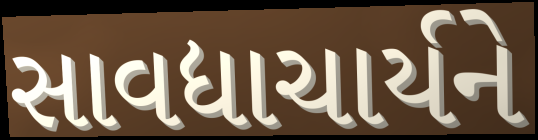
સાવદ્યાચાર્યને